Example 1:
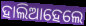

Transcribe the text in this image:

ହାଲିଆହେଲେ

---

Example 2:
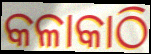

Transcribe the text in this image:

କଳାକାଠି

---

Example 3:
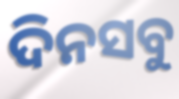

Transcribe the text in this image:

ଦିନସବୁ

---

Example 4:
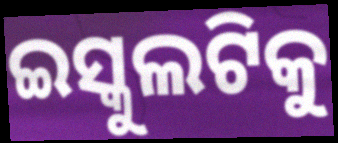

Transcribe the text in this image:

ଇସ୍କୁଲଟିକୁ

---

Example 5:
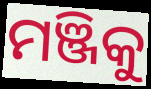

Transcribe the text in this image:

ମଞ୍ଜିକୁ